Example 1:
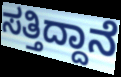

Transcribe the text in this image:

ಸತ್ತಿದ್ದಾನೆ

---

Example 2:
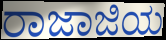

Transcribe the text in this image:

ರಾಜಾಜಿಯ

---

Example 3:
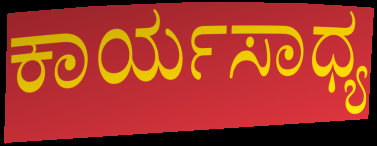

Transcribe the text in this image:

ಕಾರ್ಯಸಾಧ್ಯ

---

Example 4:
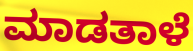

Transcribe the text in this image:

ಮಾಡತಾಳೆ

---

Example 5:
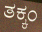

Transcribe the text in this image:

ತಕ್ಕಂ